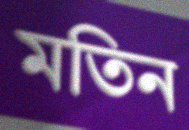
মতিন